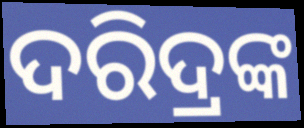
ଦରିଦ୍ରଙ୍କ